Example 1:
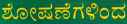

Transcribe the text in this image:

ಶೋಷಣೆಗಳಿಂದ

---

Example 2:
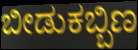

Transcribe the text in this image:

ಬೀಡುಕಬ್ಬಿಣ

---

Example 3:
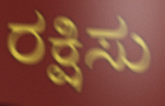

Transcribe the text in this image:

ರಕ್ಷಿಸು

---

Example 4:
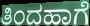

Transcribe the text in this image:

ತಿಂದಹಾಗೆ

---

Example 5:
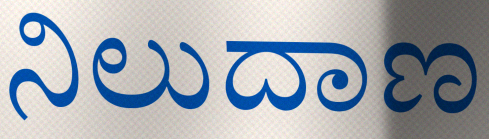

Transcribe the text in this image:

ನಿಲುದಾಣ